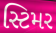
સ્ટિમર